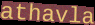
athavla